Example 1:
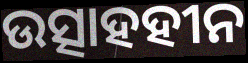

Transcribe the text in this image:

ଉତ୍ସାହହୀନ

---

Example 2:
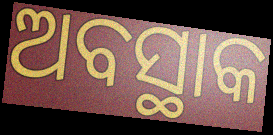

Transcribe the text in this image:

ଅବସ୍ଥାକ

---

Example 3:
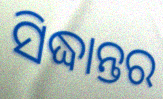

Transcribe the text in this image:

ସିଦ୍ଧାନ୍ତର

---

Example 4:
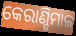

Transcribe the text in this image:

କେରାଣ୍ଡିମାଳ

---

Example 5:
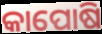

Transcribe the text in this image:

କାପୋଷି